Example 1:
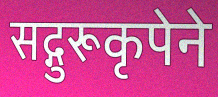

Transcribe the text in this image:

सद्गुरूकृपेने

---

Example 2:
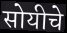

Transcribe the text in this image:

सोयीचे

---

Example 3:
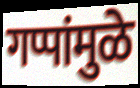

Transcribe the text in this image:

गप्पांमुळे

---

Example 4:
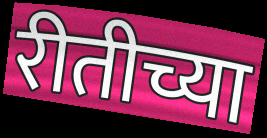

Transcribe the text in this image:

रीतीच्या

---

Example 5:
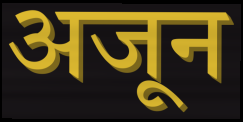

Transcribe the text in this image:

अजून